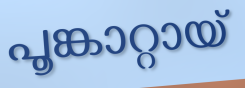
പൂങ്കാറ്റായ്